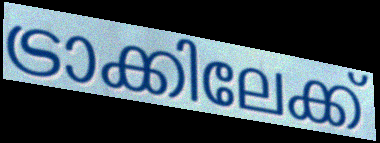
ട്രാക്കിലേക്ക്